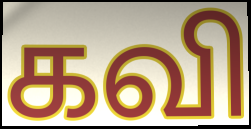
கவி